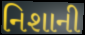
નિશાની